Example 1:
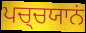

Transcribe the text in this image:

ਪਚ੍ਚਯਾਨਂ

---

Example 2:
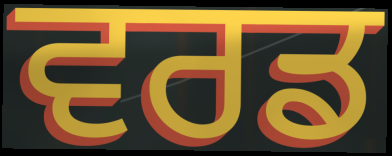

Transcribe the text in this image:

ਵਰਡ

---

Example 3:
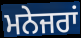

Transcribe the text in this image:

ਮਨੇਜਰਾਂ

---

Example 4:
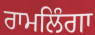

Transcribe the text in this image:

ਰਾਮਲਿੰਗਾ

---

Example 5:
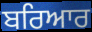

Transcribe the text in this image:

ਬਰਿਆਰ